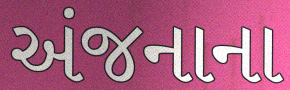
અંજનાના